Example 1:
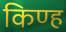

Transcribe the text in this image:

किण्ह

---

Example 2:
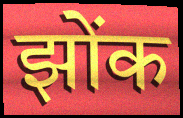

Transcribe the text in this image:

झोंक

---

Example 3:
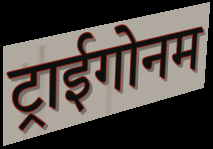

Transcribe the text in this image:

ट्राईगोनम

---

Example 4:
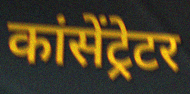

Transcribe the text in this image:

कांसेंट्रेटर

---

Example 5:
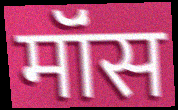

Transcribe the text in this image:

मॉंस